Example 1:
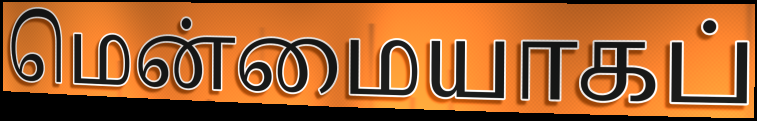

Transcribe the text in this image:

மென்மையாகப்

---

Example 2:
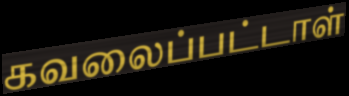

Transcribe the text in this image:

கவலைப்பட்டாள்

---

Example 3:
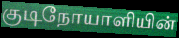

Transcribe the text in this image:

குடிநோயாளியின்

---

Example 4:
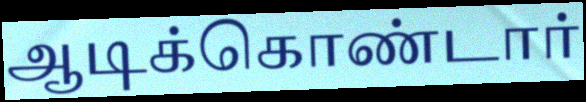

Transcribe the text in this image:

ஆடிக்கொண்டார்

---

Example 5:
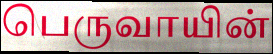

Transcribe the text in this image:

பெருவாயின்